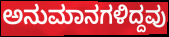
ಅನುಮಾನಗಳಿದ್ದವು